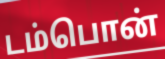
டம்பொன்